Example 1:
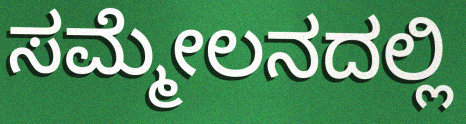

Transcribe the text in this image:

ಸಮ್ಮೇಲನದಲ್ಲಿ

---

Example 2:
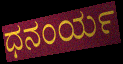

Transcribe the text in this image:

ಧನಂರ್ಯ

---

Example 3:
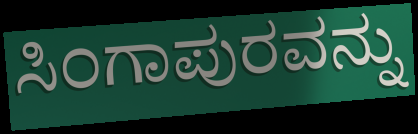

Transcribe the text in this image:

ಸಿಂಗಾಪುರವನ್ನು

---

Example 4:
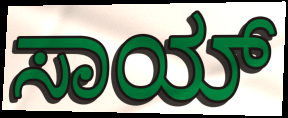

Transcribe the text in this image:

ಸಾಯ್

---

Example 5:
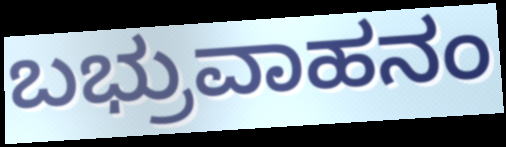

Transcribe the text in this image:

ಬಭ್ರುವಾಹನಂ